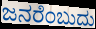
ಜನರೆಂಬುದು